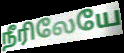
நீரிலேயே